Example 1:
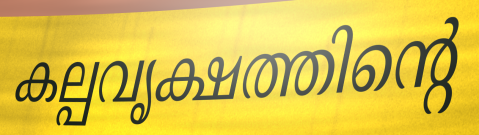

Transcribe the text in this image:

കല്പവൃക്ഷത്തിന്റെ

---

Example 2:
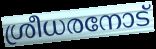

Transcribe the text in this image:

ശ്രീധരനോട്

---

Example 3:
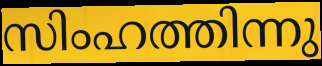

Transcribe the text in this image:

സിംഹത്തിന്നു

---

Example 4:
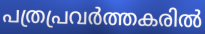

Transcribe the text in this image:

പത്രപ്രവർത്തകരിൽ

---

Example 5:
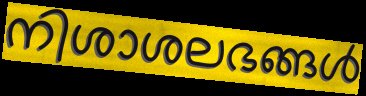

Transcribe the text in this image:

നിശാശലഭങ്ങൾ